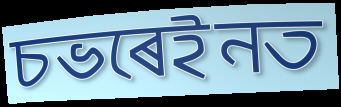
চভৰেইনত